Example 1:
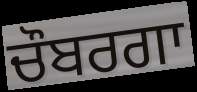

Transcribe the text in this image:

ਚੌਬਰਗਾ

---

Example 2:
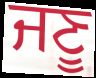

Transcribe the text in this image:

ਜਣੂ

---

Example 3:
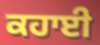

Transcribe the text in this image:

ਕਹਾਈ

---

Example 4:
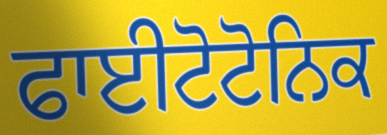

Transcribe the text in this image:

ਫਾਈਟੋਟੋਨਿਕ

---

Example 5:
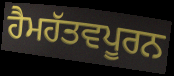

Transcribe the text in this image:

ਹੈਮਹੱਤਵਪੂਰਨ